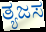
ತ್ಯಜಸ